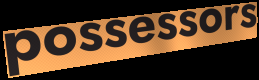
possessors